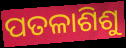
ପତଳାଶିଶୁ